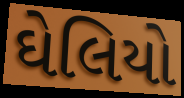
ઘેલિયો